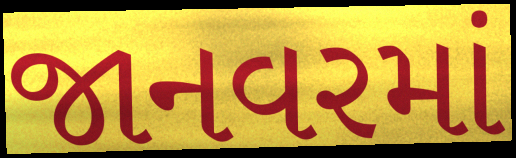
જાનવરમાં